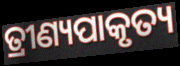
ତ୍ରୀଣ୍ୟପାକୃତ୍ୟ